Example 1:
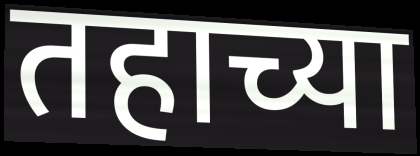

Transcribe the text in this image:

तहाच्या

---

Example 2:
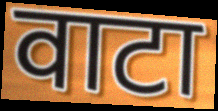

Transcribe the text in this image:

वाटा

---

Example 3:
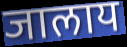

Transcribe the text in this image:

जालाय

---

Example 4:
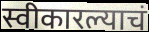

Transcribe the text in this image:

स्वीकारल्याचं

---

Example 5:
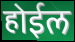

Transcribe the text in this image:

होईल